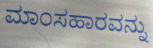
ಮಾಂಸಹಾರವನ್ನು